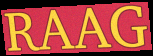
RAAG